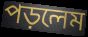
পড়লেম